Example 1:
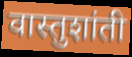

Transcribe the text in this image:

वास्तुशांती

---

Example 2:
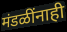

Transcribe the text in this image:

मंडळींनाही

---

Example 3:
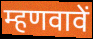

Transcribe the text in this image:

म्हणवावें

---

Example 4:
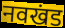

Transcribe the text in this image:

नवखंड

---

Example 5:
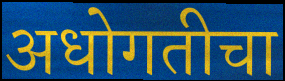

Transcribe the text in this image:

अधोगतीचा